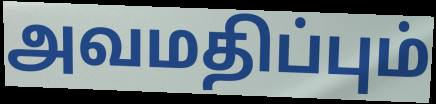
அவமதிப்பும்